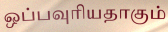
ஒப்பவுரியதாகும்